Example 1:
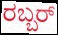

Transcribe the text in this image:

ರಬ್ಬರ್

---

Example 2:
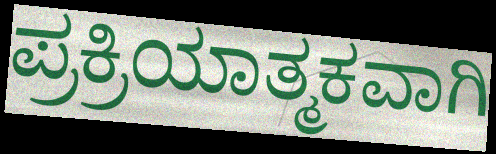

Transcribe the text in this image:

ಪ್ರಕ್ರಿಯಾತ್ಮಕವಾಗಿ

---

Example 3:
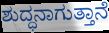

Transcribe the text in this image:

ಶುದ್ಧನಾಗುತ್ತಾನೆ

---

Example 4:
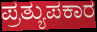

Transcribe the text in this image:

ಪ್ರತ್ಯುಪಕಾರ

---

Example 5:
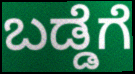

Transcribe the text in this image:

ಬಡ್ಡೆಗೆ